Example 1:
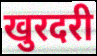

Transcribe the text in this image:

खुरदरी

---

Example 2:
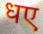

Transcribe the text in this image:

धए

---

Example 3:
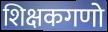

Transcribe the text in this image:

शिक्षकगणो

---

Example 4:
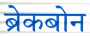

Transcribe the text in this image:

ब्रेकबोन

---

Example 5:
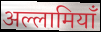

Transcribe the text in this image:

अल्लामियाँ